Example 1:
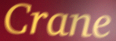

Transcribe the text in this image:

Crane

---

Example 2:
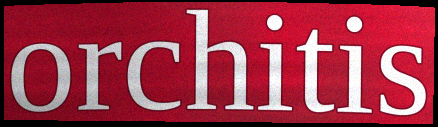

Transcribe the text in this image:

orchitis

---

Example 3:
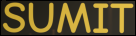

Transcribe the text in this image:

SUMIT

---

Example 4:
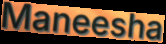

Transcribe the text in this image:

Maneesha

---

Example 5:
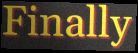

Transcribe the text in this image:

Finally